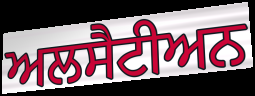
ਅਲਸੈਟੀਅਨ